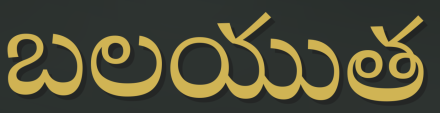
బలయుత